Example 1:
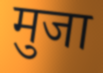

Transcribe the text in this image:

मुजा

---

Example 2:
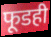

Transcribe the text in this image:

फूडही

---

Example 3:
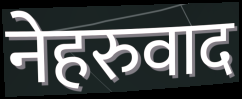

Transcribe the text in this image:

नेहरुवाद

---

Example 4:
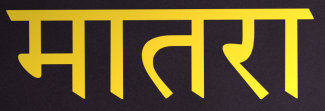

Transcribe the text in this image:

मातरा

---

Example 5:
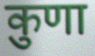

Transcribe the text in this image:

कुणा